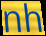
nh